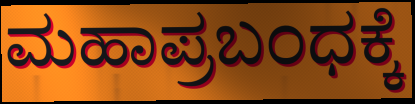
ಮಹಾಪ್ರಬಂಧಕ್ಕೆ